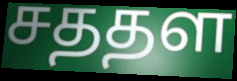
சததள